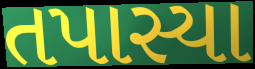
તપાસ્યા